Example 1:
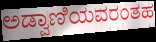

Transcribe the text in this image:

ಅಡ್ವಾಣಿಯವರಂತಹ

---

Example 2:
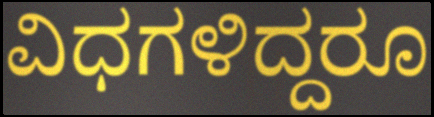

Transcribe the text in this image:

ವಿಧಗಳಿದ್ದರೂ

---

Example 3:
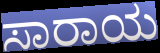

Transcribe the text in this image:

ಸಾರಾಯ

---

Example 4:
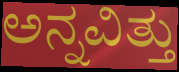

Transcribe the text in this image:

ಅನ್ನವಿತ್ತು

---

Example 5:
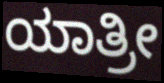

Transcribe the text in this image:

ಯಾತ್ರೀ